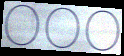
OOO